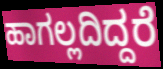
ಹಾಗಲ್ಲದಿದ್ದರೆ